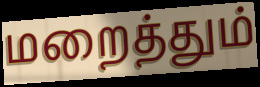
மறைத்தும்